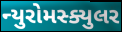
ન્યુરોમસ્ક્યુલર